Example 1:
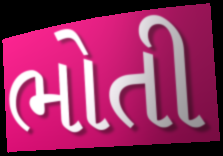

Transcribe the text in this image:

ભોતી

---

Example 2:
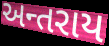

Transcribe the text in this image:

અન્તરાય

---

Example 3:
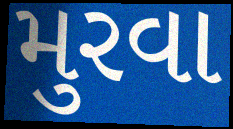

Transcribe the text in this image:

મુરવા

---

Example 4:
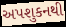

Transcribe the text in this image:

અપશુકનથી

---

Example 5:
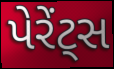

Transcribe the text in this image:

પેરેંટ્સ